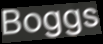
Boggs